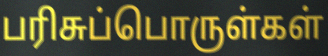
பரிசுப்பொருள்கள்